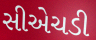
સીએચડી